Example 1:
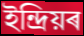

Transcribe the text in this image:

ইন্দ্ৰিয়ৰ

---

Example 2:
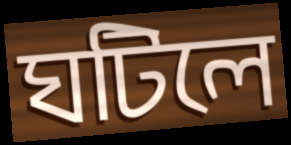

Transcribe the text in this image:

ঘটিলে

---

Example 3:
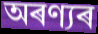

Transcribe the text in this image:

অৰণ্যৰ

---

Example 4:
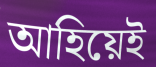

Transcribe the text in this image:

আহিয়েই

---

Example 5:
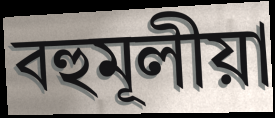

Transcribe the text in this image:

বহুমূলীয়া